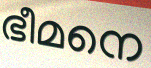
ഭീമനെ